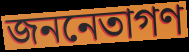
জননেতাগণ